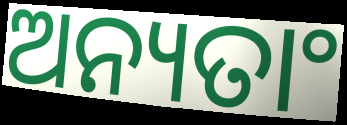
ଅନ୍ୟତାଂ